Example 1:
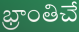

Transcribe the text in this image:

భ్రాంతిచే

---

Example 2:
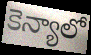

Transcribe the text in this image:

కెన్యాలో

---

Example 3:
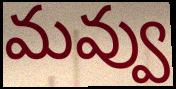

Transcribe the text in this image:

మవ్వు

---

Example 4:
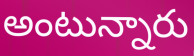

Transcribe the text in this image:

అంటున్నారు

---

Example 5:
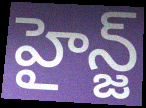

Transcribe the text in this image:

హైన్జ్